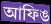
আফিঙ